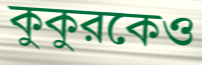
কুকুরকেও